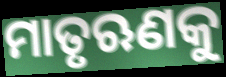
ମାତୃଋଣକୁ